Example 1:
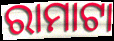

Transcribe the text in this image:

ରାମାଟା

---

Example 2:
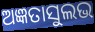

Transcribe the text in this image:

ଅଜ୍ଞତାସୁଲଭ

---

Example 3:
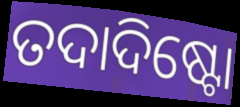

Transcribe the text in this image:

ତଦାଦିଷ୍ଟୋ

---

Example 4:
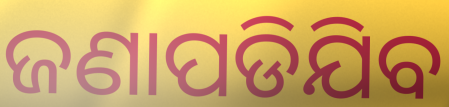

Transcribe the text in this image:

ଜଣାପଡିଯିବ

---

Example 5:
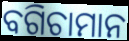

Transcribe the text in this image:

ବଗିଚାମାନ